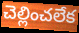
చెల్లించలేక